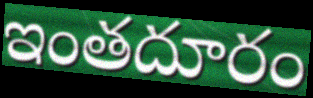
ఇంతదూరం